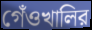
গেঁওখালির